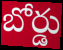
బోర్డు